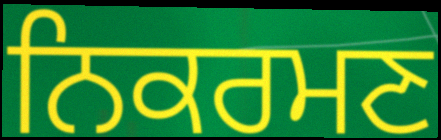
ਨਿਕਰਮਣ